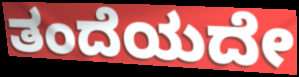
ತಂದೆಯದೇ